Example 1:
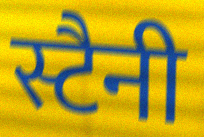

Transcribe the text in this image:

स्टैनी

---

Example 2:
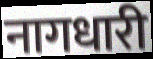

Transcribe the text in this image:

नागधारी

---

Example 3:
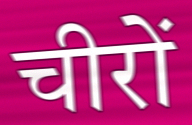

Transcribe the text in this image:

चीरों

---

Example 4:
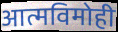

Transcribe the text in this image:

आत्मविमोही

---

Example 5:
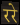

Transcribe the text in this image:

ररे